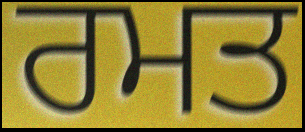
ਰਮਤ